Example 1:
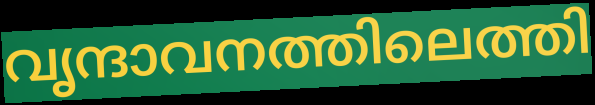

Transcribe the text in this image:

വൃന്ദാവനത്തിലെത്തി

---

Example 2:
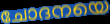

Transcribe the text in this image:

ചോദനയെ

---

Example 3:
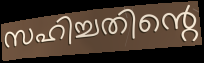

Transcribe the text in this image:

സഹിച്ചതിന്റെ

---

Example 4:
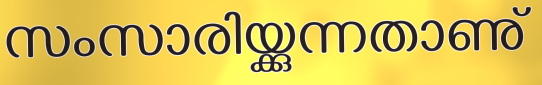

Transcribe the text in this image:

സംസാരിയ്ക്കുന്നതാണു്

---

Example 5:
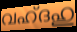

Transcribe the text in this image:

വഹ്ദഹു